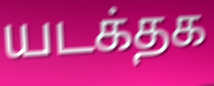
யடக்தக